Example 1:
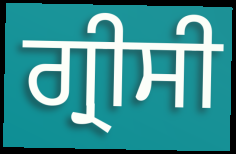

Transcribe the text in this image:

ਗ੍ਰੀਸੀ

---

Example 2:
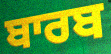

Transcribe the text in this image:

ਬਾਰਬ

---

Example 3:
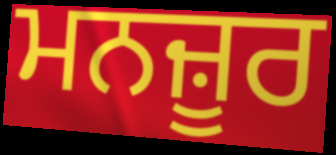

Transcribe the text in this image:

ਮਨਜ਼ੂਰ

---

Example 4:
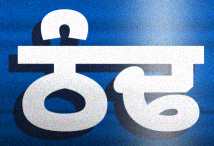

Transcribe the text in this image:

ਠੰਢ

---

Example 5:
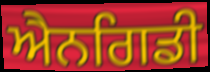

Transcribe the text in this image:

ਐਨਗਿਡੀ